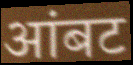
आंबट